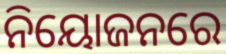
ନିୟୋଜନରେ